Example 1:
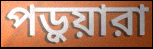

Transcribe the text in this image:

পড়ুয়ারা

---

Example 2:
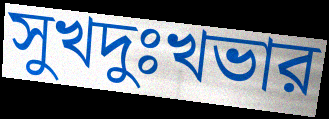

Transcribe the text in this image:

সুখদুঃখভার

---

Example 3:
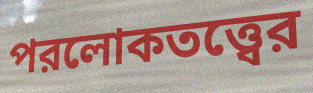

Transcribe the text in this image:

পরলোকতত্ত্বের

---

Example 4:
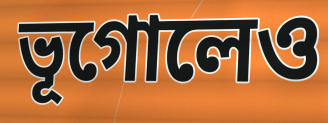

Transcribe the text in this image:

ভূগোলেও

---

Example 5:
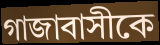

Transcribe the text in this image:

গাজাবাসীকে